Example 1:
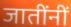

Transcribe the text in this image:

जातींनीं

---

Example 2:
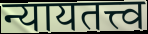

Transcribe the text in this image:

न्यायतत्त्व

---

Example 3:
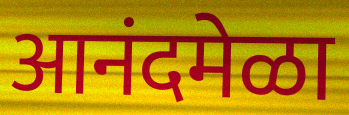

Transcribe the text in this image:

आनंदमेळा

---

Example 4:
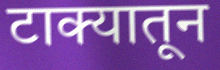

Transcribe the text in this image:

टाक्यातून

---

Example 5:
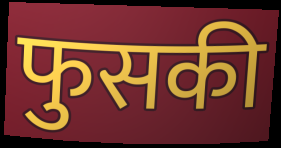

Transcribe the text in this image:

फुसकी